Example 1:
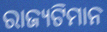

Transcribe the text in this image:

ରାଜ୍ୟଟିମାନ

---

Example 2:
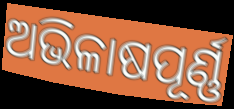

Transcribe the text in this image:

ଅଭିଳାଷପୂର୍ଣ୍ଣ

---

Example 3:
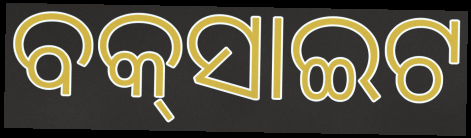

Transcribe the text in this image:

ବକ୍‌ସାଇଟ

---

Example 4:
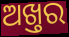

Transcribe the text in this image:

ଅଖ୍ତର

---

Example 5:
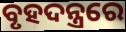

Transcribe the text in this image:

ବୃହଦନ୍ତ୍ରରେ